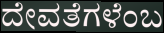
ದೇವತೆಗಳೆಂಬ